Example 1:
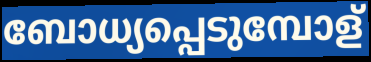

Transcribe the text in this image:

ബോധ്യപ്പെടുമ്പോള്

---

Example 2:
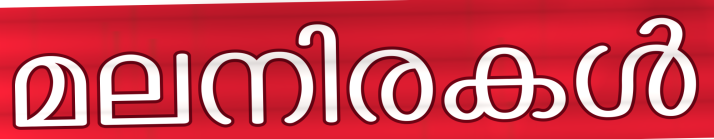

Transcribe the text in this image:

മലനിരകൾ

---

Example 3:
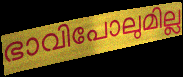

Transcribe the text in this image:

ഭാവിപോലുമില്ല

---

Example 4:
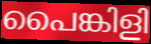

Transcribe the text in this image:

പൈങ്കിളി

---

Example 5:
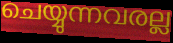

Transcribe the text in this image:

ചെയ്യുന്നവരല്ല